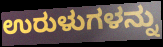
ಉರುಳುಗಳನ್ನು